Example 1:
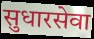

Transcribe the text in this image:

सुधारसेवा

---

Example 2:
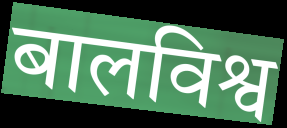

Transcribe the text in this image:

बालविश्व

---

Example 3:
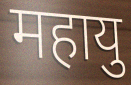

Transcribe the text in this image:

महायु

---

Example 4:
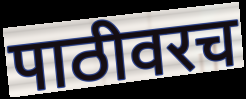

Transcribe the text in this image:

पाठीवरच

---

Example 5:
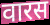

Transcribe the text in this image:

वारस